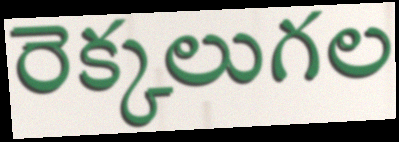
రెక్కలుగల